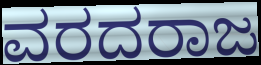
ವರದರಾಜ